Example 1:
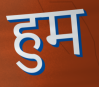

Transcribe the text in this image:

हुम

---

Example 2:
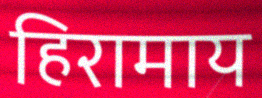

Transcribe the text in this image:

हिरामाय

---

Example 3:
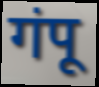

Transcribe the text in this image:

गंपू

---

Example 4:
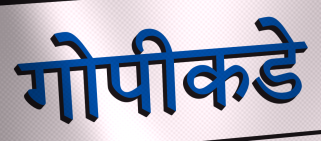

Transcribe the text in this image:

गोपीकडे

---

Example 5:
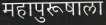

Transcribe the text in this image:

महापुरूषाला